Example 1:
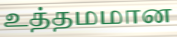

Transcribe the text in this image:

உத்தமமான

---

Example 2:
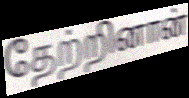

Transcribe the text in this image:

தேற்றினான்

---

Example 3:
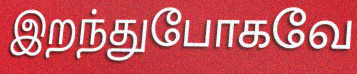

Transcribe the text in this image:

இறந்துபோகவே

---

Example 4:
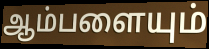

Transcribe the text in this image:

ஆம்பளையும்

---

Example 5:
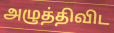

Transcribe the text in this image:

அழுத்திவிட